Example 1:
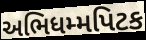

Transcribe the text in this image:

અભિધમ્મપિટક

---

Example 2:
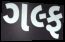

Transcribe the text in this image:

ગલ્ફ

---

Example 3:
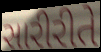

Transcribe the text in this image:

સારીરીતે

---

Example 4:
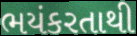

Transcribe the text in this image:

ભયંકરતાથી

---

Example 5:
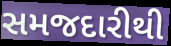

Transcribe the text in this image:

સમજદારીથી